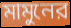
মামুনের